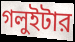
গলুইটার